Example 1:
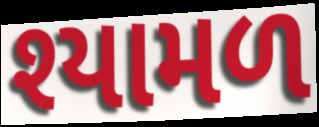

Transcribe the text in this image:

શ્યામળ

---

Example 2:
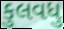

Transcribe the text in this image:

કુલવધુ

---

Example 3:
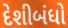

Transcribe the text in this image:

દેશીબંધો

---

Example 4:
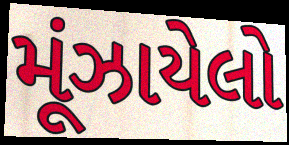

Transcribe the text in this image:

મૂંઝાયેલો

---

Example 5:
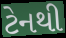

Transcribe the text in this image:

ટેનથી